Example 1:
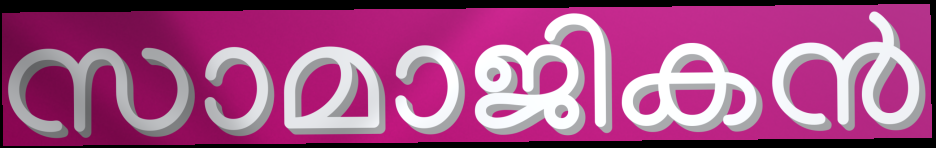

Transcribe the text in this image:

സാമാജികൻ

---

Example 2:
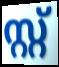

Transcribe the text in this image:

സ്റ്റ്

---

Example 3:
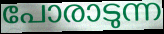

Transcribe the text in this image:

പോരാടുന്ന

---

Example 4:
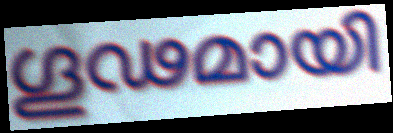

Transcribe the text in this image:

ഗൂഢമായി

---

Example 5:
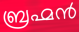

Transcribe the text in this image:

ബ്രഹ്മൻ